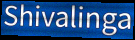
Shivalinga